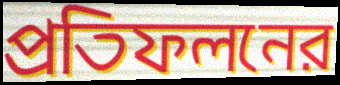
প্রতিফলনের